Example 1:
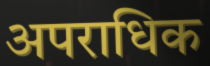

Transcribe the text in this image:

अपराधिक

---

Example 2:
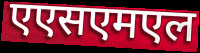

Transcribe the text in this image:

एएसएमएल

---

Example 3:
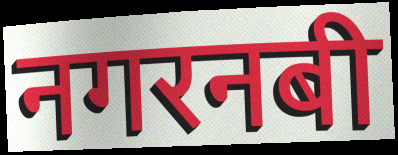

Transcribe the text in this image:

नगरनबी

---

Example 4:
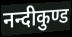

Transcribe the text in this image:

नन्दीकुण्ड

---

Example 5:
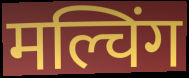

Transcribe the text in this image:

मल्चिंग